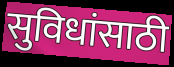
सुविधांसाठी